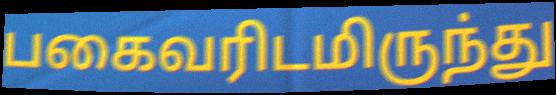
பகைவரிடமிருந்து